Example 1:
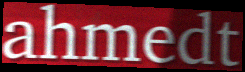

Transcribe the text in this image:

ahmedt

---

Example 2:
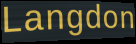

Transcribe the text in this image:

Langdon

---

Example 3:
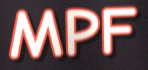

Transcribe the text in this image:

MPF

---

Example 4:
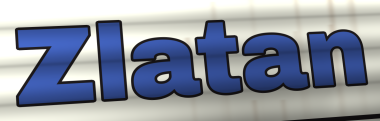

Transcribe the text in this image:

Zlatan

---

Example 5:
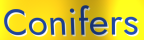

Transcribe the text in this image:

Conifers